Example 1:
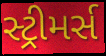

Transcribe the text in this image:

સ્ટ્રીમર્સ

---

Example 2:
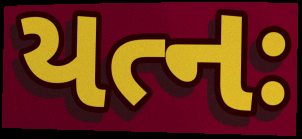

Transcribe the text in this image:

યત્નઃ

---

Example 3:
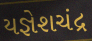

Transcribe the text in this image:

યજ્ઞેશચંદ્ર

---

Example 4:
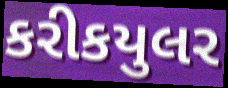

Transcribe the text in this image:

કરીકયુલર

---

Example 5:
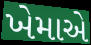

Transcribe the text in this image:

ખેમાએ